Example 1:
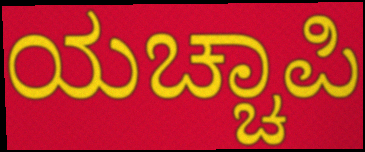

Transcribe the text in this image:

ಯಚ್ಚಾಪಿ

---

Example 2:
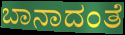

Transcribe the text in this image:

ಬಾನಾದಂತೆ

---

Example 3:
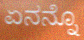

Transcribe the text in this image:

ಏನನ್ನೊ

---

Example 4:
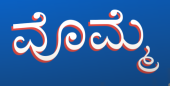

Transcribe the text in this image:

ವೊಮ್ಮೆ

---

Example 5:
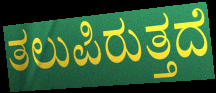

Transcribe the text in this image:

ತಲುಪಿರುತ್ತದೆ